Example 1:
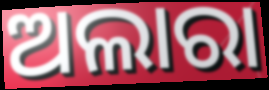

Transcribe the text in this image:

ଅଲାରା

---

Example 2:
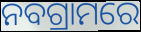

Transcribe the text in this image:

ନବଗ୍ରାମରେ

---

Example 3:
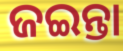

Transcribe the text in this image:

ଜଇନ୍ତା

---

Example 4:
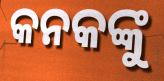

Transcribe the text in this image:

କନକଙ୍କୁ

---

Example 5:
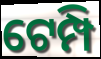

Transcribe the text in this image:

ଟେମ୍ପି